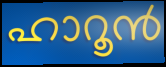
ഹാറൂൻ